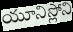
యూనిస్లోని